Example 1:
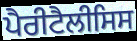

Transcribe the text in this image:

ਪੈਰੀਟੈਲੀਸਿਸ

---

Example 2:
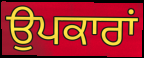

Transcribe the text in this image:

ਉਪਕਾਰਾਂ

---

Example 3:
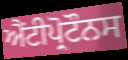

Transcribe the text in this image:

ਐਂਟੀਪ੍ਰੋਟੌਨਸ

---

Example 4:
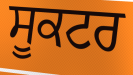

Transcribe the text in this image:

ਸੂਕਟਰ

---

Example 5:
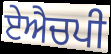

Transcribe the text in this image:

ਏਐਚਪੀ